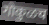
गोकुळच